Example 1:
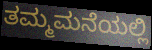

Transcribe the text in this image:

ತಮ್ಮಮನೆಯಲ್ಲಿ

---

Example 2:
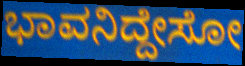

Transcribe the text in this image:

ಭಾವನಿದ್ದೇಸೋ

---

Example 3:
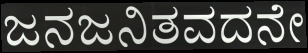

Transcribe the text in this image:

ಜನಜನಿತವದನೇ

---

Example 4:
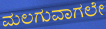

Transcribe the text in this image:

ಮಲಗುವಾಗಲೇ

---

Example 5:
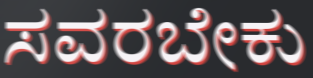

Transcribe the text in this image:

ಸವರಬೇಕು